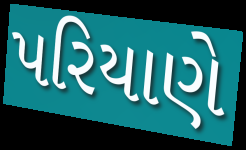
પરિયાણે